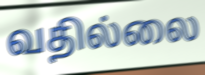
வதில்லை